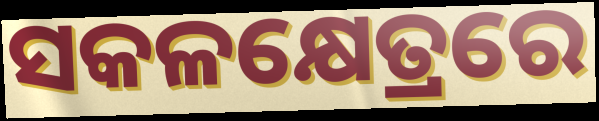
ସକଳକ୍ଷେତ୍ରରେ